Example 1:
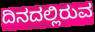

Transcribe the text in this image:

ದಿನದಲ್ಲಿರುವ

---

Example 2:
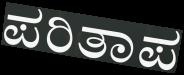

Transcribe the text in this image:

ಪರಿತಾಪ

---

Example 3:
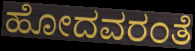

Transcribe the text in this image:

ಹೋದವರಂತೆ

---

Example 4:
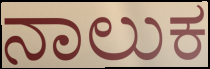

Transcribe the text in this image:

ನಾಲುಕ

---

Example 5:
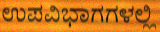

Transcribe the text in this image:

ಉಪವಿಭಾಗಗಳಲ್ಲಿ